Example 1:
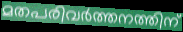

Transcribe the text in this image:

മതപരിവർത്തനത്തിന്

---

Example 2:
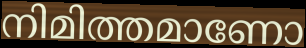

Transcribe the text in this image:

നിമിത്തമാണോ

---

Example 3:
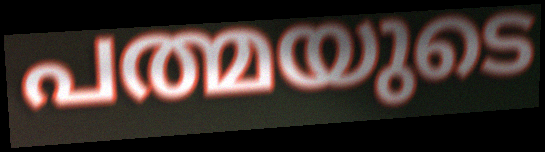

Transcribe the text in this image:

പത്മയുടെ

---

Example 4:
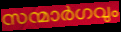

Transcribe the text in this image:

സന്മാർഗവും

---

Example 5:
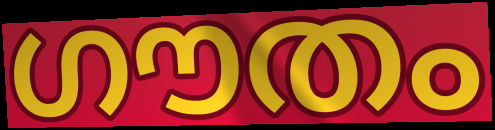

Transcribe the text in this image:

ഗൗതം